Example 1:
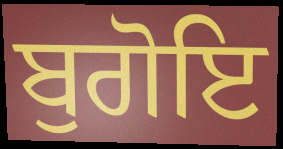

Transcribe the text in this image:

ਬੁਗੋਇ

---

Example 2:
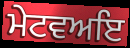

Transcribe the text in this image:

ਮੇਟਵਅਇ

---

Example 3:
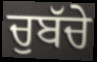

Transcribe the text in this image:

ਚੁਬੱਚੇ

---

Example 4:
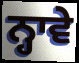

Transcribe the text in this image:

ਨ੍ਹਾਵੇ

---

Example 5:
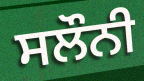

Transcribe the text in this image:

ਸਲੌਨੀ